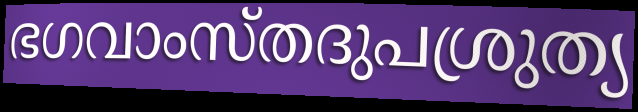
ഭഗവാംസ്തദുപശ്രുത്യ